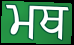
ਮਥ